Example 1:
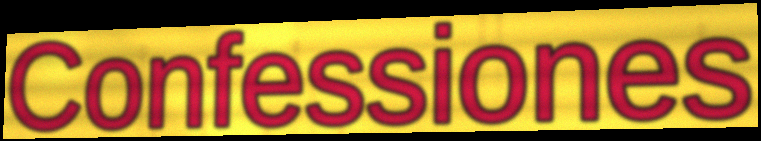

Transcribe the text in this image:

Confessiones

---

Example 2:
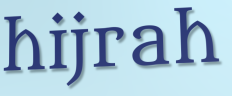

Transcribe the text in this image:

hijrah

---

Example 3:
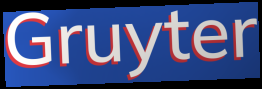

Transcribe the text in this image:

Gruyter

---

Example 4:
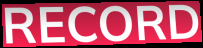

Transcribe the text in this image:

RECORD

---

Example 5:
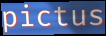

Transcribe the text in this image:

pictus